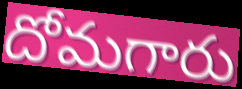
దోమగారు